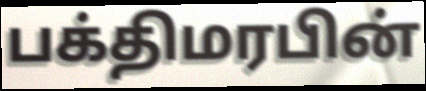
பக்திமரபின்